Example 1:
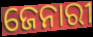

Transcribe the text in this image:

ଜେନାରୀ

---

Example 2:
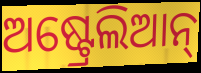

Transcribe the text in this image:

ଅଷ୍ଟ୍ରେଲିଆନ୍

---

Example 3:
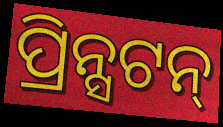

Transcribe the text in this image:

ପ୍ରିନ୍ସଟନ୍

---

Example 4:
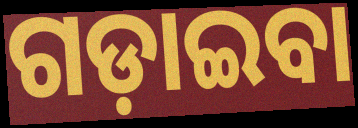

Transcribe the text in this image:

ଗଡ଼ାଇବା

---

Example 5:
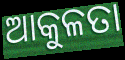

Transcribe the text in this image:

ଆକୁଳତା